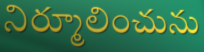
నిర్మూలించును